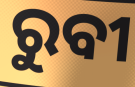
ରୁବୀ